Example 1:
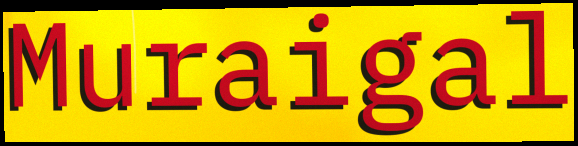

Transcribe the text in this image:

Muraigal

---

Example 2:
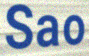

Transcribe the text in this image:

Sao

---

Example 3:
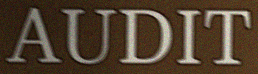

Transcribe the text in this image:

AUDIT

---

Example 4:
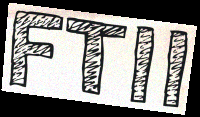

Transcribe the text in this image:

FTII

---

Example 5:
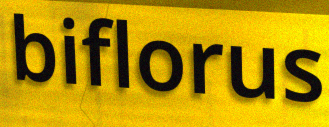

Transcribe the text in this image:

biflorus